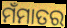
ମଁମାତର